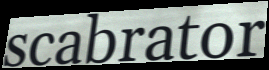
scabrator